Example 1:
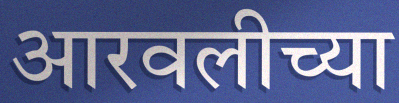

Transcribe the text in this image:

आरवलीच्या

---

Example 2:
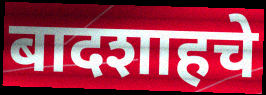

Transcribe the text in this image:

बादशाहचे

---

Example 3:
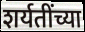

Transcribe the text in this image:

शर्यतींच्या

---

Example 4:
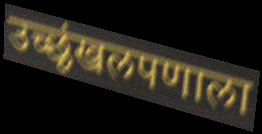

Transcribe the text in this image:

उच्छृंखलपणाला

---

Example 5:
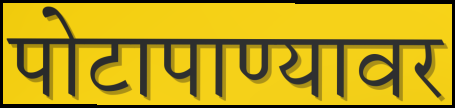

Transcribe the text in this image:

पोटापाण्यावर